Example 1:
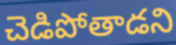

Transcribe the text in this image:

చెడిపోతాడని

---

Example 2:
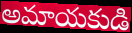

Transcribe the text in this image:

అమాయకుడి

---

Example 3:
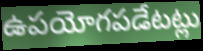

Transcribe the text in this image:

ఉపయోగపడేటట్లు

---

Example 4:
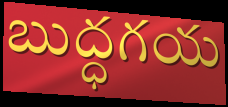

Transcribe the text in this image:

బుద్ధగయ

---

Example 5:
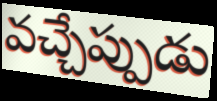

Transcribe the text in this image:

వచ్చేప్పుడు